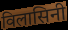
विलासिनी